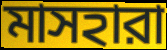
মাসহারা